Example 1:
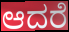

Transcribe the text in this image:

ಆದರೆ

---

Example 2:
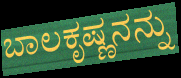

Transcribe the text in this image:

ಬಾಲಕೃಷ್ಣನನ್ನು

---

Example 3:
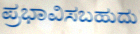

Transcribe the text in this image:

ಪ್ರಭಾವಿಸಬಹುದು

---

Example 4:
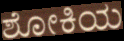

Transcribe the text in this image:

ಶೋಕಿಯ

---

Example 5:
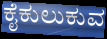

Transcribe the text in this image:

ಕೈಕುಲುಕುವ